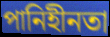
পানিহীনতা